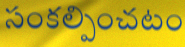
సంకల్పించటం